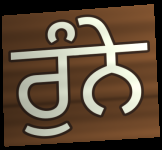
ਰੁੰਨੇ